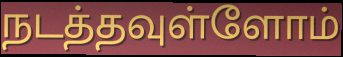
நடத்தவுள்ளோம்